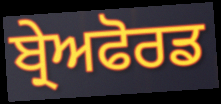
ਬ੍ਰੇਅਫੋਰਡ